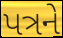
પત્રને